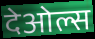
देओल्स